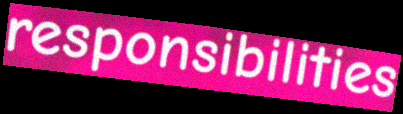
responsibilities